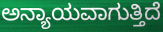
ಅನ್ಯಾಯವಾಗುತ್ತಿದೆ